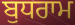
ਬੁਧਰਾਮ